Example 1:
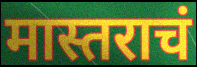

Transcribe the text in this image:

मास्तराचं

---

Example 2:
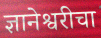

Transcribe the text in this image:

ज्ञानेश्वरीचा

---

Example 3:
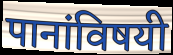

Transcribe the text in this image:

पानांविषयी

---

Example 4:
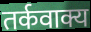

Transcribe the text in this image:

तर्कवाक्य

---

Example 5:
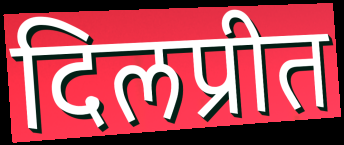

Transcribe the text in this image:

दिलप्रीत